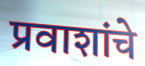
प्रवाशांचे